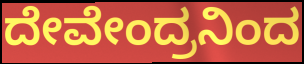
ದೇವೇಂದ್ರನಿಂದ